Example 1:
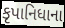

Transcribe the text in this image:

કૃપાનિધાના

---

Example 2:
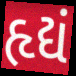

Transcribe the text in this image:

હૃદ્યં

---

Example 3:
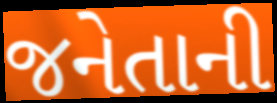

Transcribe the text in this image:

જનેતાની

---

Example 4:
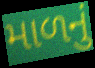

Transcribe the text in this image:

માળનું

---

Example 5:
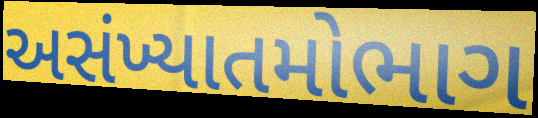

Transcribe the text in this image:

અસંખ્યાતમોભાગ